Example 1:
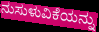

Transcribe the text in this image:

ನುಸುಳುವಿಕೆಯನ್ನು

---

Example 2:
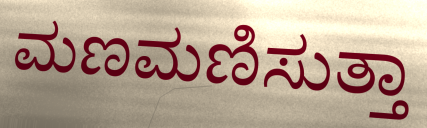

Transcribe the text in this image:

ಮಣಮಣಿಸುತ್ತಾ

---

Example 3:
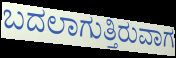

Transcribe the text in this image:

ಬದಲಾಗುತ್ತಿರುವಾಗ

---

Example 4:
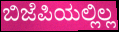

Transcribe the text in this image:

ಬಿಜೆಪಿಯಲ್ಲಿಲ್ಲ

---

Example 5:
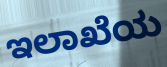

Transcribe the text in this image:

ಇಲಾಖೆಯ